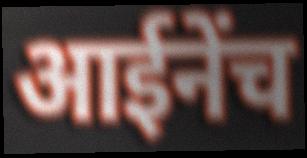
आईनेंच